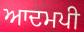
ਆਦਮਪੀ